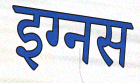
इग्नस